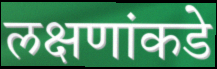
लक्षणांकडे